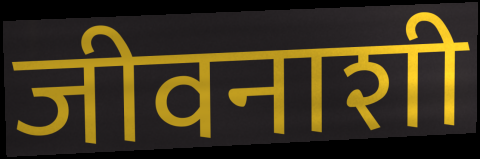
जीवनाशी